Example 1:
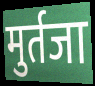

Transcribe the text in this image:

मुर्तजा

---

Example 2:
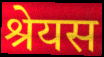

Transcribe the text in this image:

श्रेयस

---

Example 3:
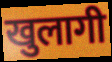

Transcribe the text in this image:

खुलागी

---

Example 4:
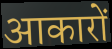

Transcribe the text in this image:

आकारों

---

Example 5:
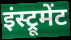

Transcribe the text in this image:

इंस्ट्रूमेंट